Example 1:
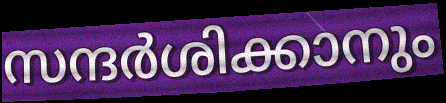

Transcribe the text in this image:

സന്ദർശിക്കാനും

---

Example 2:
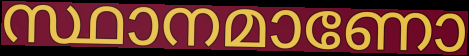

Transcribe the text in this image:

സ്ഥാനമാണോ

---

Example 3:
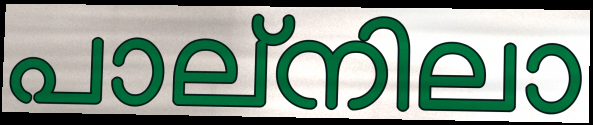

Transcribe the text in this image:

പാല്നിലാ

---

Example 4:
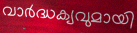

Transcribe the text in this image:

വാർദ്ധക്യവുമായി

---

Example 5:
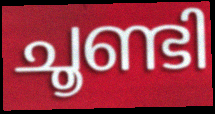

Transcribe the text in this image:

ചൂണ്ടി